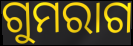
ଗୁମରାଗ